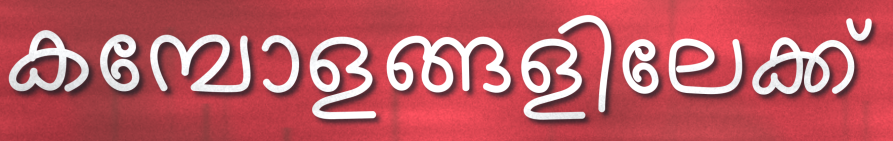
കമ്പോളങ്ങളിലേക്ക്